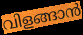
വിളങ്ങാൻ